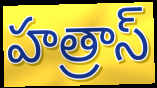
హత్రాస్